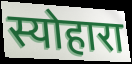
स्योहारा